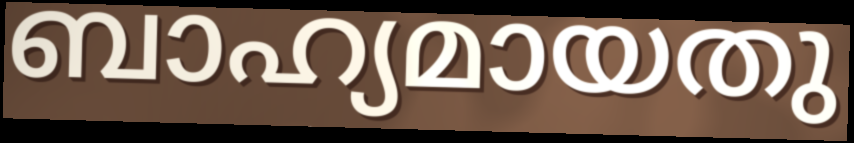
ബാഹ്യമായതു